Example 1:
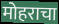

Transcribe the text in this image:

मोहराचा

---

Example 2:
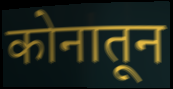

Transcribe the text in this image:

कोनातून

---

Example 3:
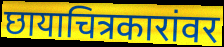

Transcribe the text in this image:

छायाचित्रकारांवर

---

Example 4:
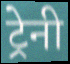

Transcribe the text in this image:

ट्रेनी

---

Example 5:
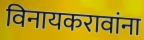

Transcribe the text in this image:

विनायकरावांना